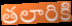
తలారికి